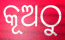
କୂଅଠୁ